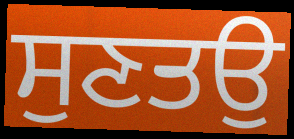
ਸੁਣਤਉ